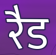
रैड